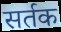
सर्तक